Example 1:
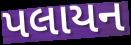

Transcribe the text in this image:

પલાયન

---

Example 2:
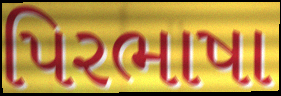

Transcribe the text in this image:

પિરભાષા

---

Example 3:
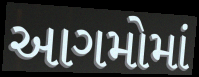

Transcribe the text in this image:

આગમોમાં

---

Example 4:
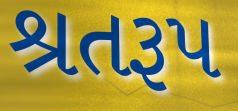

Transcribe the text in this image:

શ્રતરૂપ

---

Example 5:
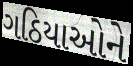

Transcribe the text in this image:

ગઠિયાઓને